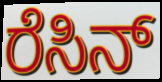
ರೆಸಿನ್